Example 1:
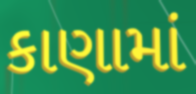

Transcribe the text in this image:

કાણામાં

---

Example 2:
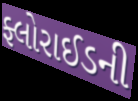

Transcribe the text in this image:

ફ્લોરાઈડની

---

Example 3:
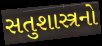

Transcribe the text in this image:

સતુશાસ્ત્રનો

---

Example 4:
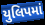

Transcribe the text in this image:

યુલિપમાં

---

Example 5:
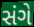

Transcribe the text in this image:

સંગે